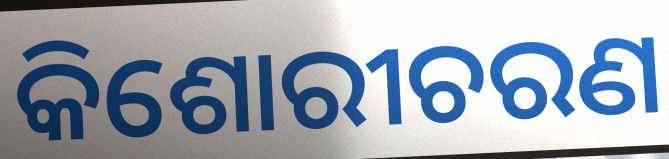
କିଶୋରୀଚରଣ